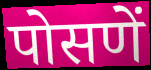
पोसणें